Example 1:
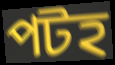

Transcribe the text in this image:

পটহ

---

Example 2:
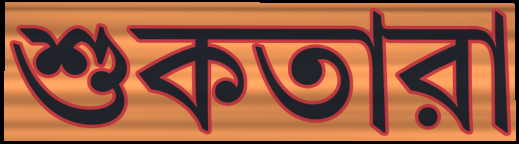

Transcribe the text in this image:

শুকতারা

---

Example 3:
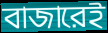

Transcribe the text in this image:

বাজারেই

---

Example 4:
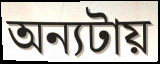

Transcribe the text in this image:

অন্যটায়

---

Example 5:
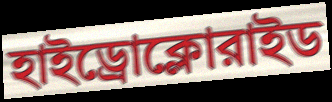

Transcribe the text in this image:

হাইড্রোক্লোরাইড